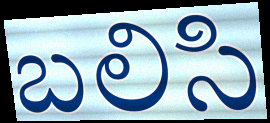
బలిసి